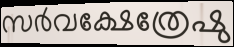
സർവക്ഷേത്രേഷു